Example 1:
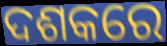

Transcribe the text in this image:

ଦଶକରେ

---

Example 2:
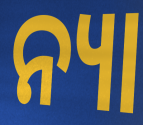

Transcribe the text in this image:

ନ୍ୟା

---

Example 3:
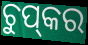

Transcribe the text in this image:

ଚୁପ୍‌କର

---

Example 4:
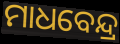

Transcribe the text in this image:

ମାଧବେନ୍ଦ୍ର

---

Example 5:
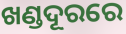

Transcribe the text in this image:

ଖଣ୍ଡଦୂରରେ